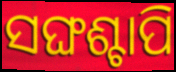
ସଙ୍ଘଶ୍ଚାପି